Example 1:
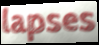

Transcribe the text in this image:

lapses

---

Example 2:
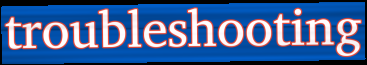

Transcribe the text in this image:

troubleshooting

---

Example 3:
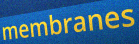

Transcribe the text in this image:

membranes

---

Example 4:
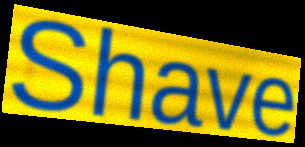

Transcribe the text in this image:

Shave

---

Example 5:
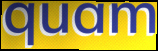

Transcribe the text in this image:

quam